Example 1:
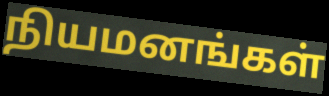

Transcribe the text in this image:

நியமனங்கள்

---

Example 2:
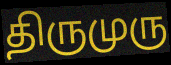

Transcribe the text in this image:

திருமுரு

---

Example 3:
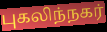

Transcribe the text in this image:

புகலிந்நகர்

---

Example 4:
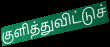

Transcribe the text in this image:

குளித்துவிட்டுச்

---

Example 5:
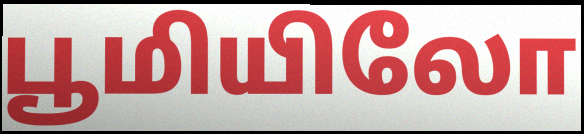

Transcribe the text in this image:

பூமியிலோ